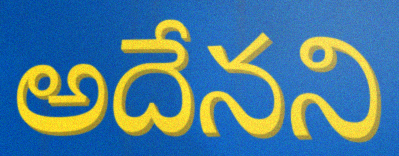
అదేనని